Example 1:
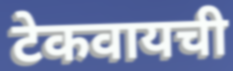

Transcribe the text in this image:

टेकवायची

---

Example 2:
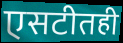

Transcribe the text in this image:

एसटीतही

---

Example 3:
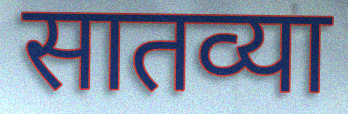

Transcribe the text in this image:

सातव्या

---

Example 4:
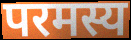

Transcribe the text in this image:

परमस्य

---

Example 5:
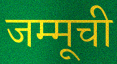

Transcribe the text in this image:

जम्मूची